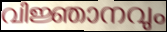
വിജ്ഞാനവും